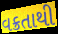
વક્રતાથી